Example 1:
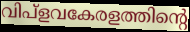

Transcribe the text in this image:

വിപ്ളവകേരളത്തിന്റെ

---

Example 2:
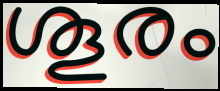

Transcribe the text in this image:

ശൂരം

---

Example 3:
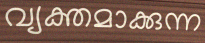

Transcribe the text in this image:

വ്യക്തമാക്കുന്ന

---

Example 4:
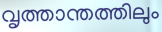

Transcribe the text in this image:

വൃത്താന്തത്തിലും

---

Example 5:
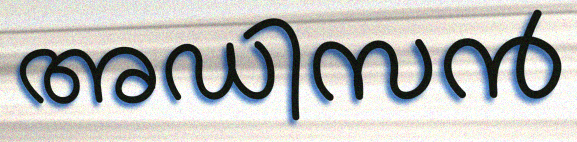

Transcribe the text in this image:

അഡിസൻ